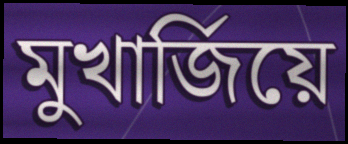
মুখাৰ্জিয়ে